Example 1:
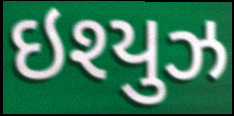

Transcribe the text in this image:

ઇશ્યુઝ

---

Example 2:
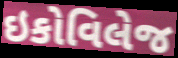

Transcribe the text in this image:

ઇકોવિલેજ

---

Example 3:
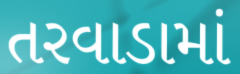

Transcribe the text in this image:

તરવાડામાં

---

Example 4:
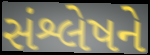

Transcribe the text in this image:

સંશ્લેષને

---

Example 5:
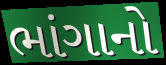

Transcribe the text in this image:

ભાંગાનો